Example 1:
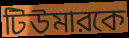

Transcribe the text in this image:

টিউমারকে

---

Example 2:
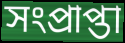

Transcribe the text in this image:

সংপ্রাপ্তা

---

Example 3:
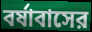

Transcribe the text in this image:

বর্ষাবাসের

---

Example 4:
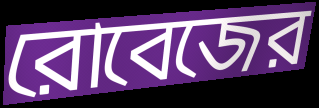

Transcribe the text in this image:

রোবেজের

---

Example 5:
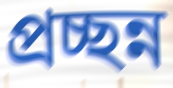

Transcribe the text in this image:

প্রচ্ছন্ন